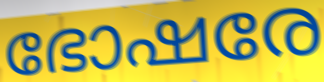
ഭോഷരേ